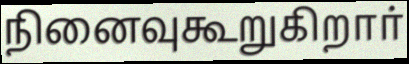
நினைவுகூறுகிறார்